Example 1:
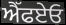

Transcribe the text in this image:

ਐੱਫਏਓ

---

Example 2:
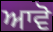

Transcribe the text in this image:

ਆਵੋ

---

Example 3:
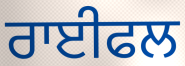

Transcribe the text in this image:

ਰਾਈਫਲ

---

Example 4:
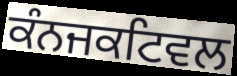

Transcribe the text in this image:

ਕੰਨਜਕਟਿਵਲ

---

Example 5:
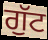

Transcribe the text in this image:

ਗੁੱਟ